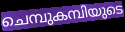
ചെമ്പുകമ്പിയുടെ